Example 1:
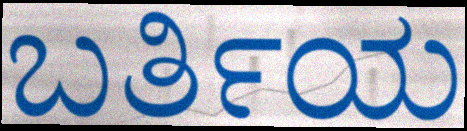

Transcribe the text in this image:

ಬರ್ತಿಯ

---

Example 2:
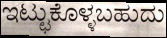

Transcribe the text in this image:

ಇಟ್ಟುಕೊಳ್ಳಬಹುದು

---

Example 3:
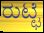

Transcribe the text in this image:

ರುಟ್ಟೆ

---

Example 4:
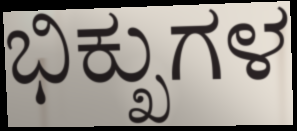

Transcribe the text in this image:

ಭಿಕ್ಖುಗಳ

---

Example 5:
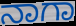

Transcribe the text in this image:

ನಾಗಾ